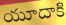
యూదాకి